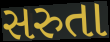
સરુતા